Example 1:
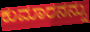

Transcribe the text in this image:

ಕುಮಾರನನ್ನು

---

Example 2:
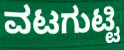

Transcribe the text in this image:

ವಟಗುಟ್ಟಿ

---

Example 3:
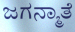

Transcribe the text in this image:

ಜಗನ್ಮಾತೆ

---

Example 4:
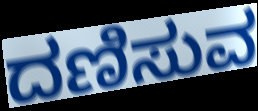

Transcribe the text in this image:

ದಣಿಸುವ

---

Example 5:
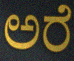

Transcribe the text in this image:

ಅರೆ